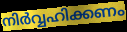
നിർവ്വഹിക്കണം